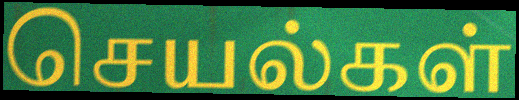
செயல்கள்